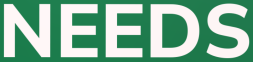
NEEDS